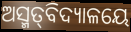
ଅସ୍ମତ୍‌ବିଦ୍ୟାଳୟେ